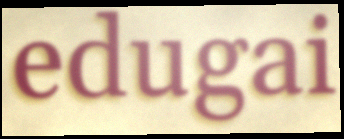
edugai